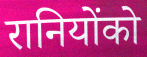
रानियोंको